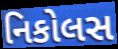
નિકોલસ